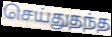
செய்துதந்த